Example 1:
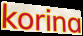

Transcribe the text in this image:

korina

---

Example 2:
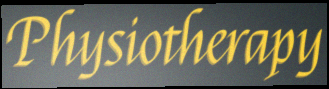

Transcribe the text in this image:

Physiotherapy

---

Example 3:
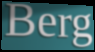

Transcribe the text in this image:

Berg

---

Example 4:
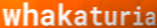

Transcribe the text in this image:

whakaturia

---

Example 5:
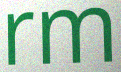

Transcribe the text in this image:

rm